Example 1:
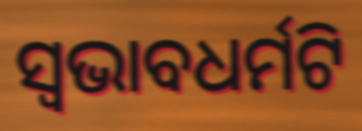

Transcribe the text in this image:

ସ୍ଵଭାବଧର୍ମଟି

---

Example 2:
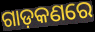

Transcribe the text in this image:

ଗାଡ଼କଣରେ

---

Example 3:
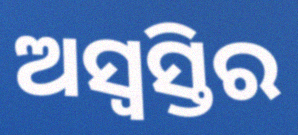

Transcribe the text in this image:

ଅସ୍ୱସ୍ତିର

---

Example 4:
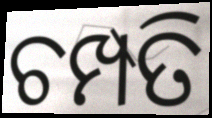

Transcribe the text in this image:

ଚମ୍ପତି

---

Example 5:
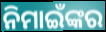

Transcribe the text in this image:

ନିମାଇଁଙ୍କର